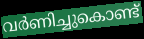
വർണിച്ചുകൊണ്ട്